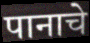
पानाचे